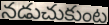
నడుచుకుంట